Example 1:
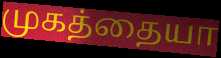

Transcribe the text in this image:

முகத்தையா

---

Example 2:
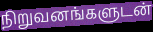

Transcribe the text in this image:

நிறுவனங்களுடன்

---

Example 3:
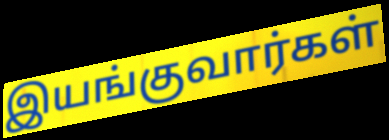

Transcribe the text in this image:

இயங்குவார்கள்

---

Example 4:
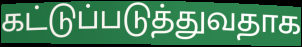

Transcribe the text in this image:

கட்டுப்படுத்துவதாக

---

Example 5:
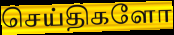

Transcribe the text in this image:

செய்திகளோ